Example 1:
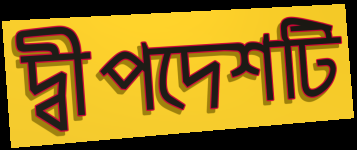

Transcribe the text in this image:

দ্বীপদেশটি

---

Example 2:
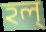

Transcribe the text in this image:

হল্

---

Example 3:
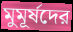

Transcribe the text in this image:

মুমূর্ষদের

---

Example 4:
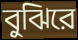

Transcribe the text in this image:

বুঝিরে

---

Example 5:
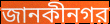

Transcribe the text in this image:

জানকীনগর